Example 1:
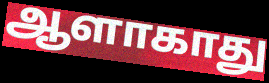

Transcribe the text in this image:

ஆளாகாது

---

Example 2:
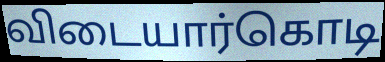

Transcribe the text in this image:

விடையார்கொடி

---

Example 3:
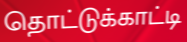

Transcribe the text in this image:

தொட்டுக்காட்டி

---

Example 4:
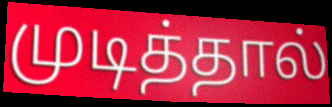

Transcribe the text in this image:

முடித்தால்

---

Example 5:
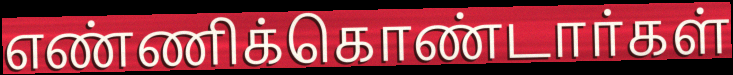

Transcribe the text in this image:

எண்ணிக்கொண்டார்கள்